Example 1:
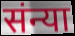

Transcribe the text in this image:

संन्या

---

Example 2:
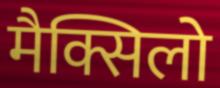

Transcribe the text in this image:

मैक्सिलो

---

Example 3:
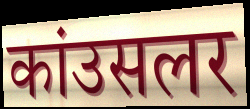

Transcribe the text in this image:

कांउसलर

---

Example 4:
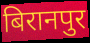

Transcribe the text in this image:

बिरानपुर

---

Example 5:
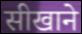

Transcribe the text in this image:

सीखाने